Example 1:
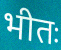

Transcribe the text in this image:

भीतः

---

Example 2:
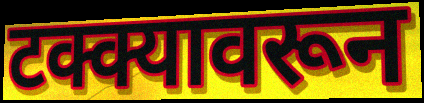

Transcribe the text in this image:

टक्क्यावरून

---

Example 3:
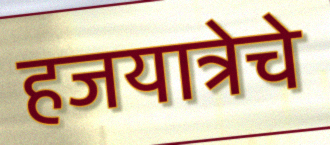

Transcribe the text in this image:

हजयात्रेचे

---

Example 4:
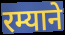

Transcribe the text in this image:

रम्याने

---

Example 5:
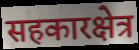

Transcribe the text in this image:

सहकारक्षेत्र